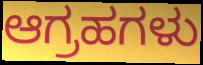
ಆಗ್ರಹಗಳು